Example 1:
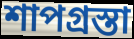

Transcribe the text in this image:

শাপগ্রস্তা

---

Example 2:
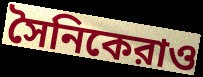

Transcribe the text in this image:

সৈনিকেরাও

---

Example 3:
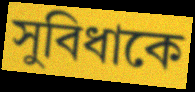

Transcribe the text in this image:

সুবিধাকে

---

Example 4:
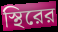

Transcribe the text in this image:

স্থিরের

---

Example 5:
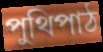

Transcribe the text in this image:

পুথিপাঠ